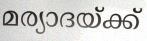
മര്യാദയ്ക്ക്